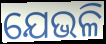
ଯେଭଳି